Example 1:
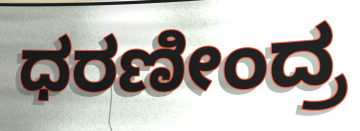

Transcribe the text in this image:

ಧರಣೀಂದ್ರ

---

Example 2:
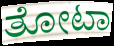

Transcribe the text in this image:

ತೋಟಾ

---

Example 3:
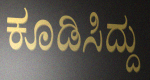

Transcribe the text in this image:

ಕೂಡಿಸಿದ್ದು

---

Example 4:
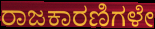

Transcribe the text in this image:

ರಾಜಕಾರಣಿಗಳೇ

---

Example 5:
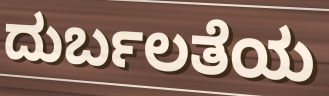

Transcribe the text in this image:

ದುರ್ಬಲತೆಯ